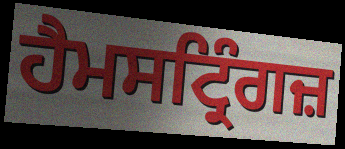
ਹੈਮਸਟ੍ਰਿੰਗਜ਼